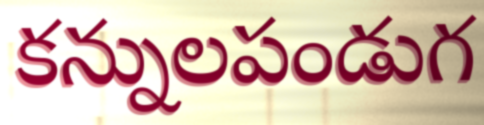
కన్నులపండుగ